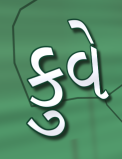
કુવે